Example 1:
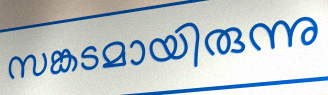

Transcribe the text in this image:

സങ്കടമായിരുന്നു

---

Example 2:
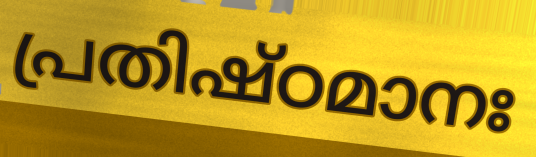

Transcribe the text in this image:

പ്രതിഷ്ഠമാനഃ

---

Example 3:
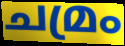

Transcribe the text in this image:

ചമ്രം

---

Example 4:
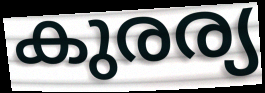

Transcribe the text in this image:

കുരര്യ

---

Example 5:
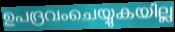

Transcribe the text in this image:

ഉപദ്രവംചെയ്യുകയില്ല